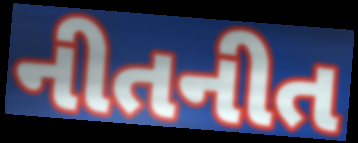
નીતનીત